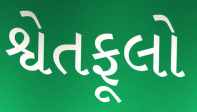
શ્વેતફૂલો